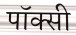
पॉक्सी